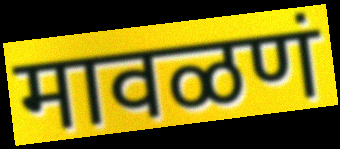
मावळणं